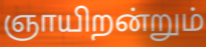
ஞாயிறன்றும்